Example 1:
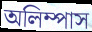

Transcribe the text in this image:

অলিম্পাস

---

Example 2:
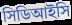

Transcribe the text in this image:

সিডিআইসি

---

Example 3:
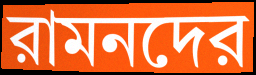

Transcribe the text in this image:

রামনদের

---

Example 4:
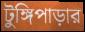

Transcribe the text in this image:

টুঙ্গিপাড়ার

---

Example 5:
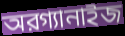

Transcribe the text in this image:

অরগ্যানাইজ